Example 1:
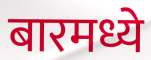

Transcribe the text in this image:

बारमध्ये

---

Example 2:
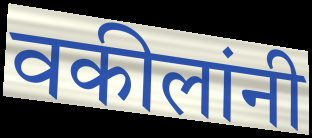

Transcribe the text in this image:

वकीलांनी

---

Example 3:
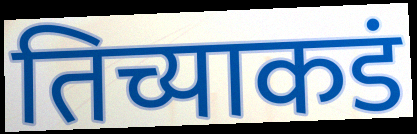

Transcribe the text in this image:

तिच्याकडं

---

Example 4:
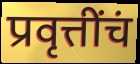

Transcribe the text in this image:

प्रवृत्तींचं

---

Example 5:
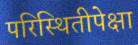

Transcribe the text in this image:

परिस्थितीपेक्षा